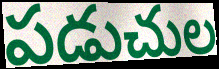
పడుచుల